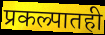
प्रकल्पातही